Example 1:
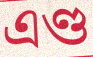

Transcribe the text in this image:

এণ্ড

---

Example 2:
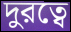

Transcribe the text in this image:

দুরত্বে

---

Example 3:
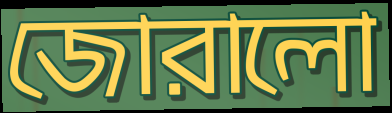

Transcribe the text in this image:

জোরালো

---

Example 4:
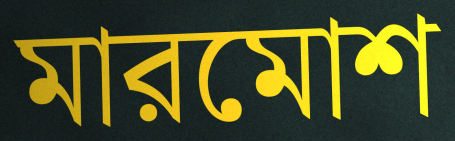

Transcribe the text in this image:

মারমোশ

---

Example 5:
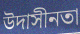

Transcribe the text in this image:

উদাসীনতা